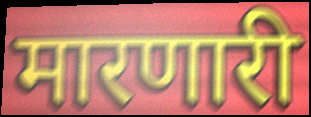
मारणारी